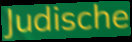
Judische